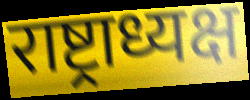
राष्ट्राध्यक्ष